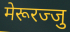
मेरूरज्जु